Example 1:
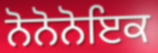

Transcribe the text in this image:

ਨੋਨੋਨੋਇਕ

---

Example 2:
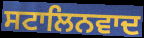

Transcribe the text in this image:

ਸਟਾਲਿਨਵਾਦ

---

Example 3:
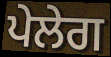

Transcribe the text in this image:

ਪੇਲੇਗ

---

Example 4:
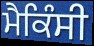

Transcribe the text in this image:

ਮੈਕਿੰਸੀ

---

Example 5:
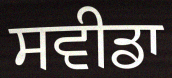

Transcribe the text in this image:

ਸਵੀਡਾ